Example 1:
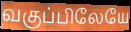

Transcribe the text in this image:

வகுப்பிலேயே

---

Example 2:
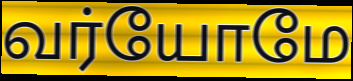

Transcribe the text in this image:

வர்யோமே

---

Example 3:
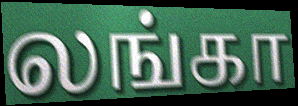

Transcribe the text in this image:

லங்கா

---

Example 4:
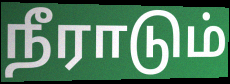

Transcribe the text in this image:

நீராடும்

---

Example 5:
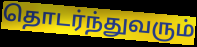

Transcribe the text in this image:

தொடர்ந்துவரும்